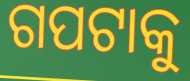
ଗପଟାକୁ